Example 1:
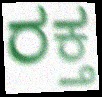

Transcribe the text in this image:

ರಕ್ತ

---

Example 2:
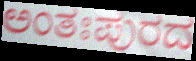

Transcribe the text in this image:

ಅಂತಃಪುರದ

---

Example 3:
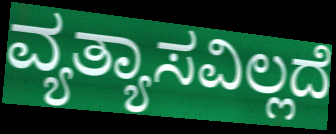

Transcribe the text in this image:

ವ್ಯತ್ಯಾಸವಿಲ್ಲದೆ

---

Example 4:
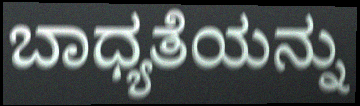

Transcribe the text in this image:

ಬಾಧ್ಯತೆಯನ್ನು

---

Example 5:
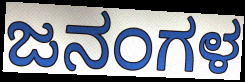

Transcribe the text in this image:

ಜನಂಗಳ